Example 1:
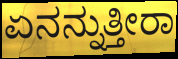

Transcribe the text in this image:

ಏನನ್ನುತ್ತೀರಾ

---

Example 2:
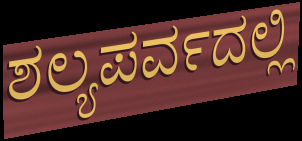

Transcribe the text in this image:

ಶಲ್ಯಪರ್ವದಲ್ಲಿ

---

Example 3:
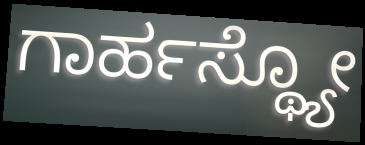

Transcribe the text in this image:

ಗಾರ್ಹಸ್ಥ್ಯೋ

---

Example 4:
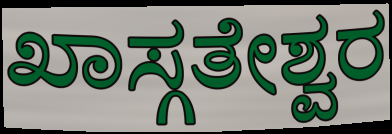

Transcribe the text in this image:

ಖಾಸ್ಗತೇಶ್ವರ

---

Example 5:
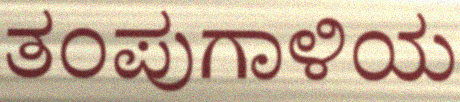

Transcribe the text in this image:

ತಂಪುಗಾಳಿಯ